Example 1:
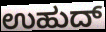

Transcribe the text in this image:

ಉಹುದ್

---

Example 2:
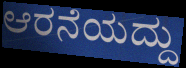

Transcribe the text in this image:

ಆರನೆಯದ್ದು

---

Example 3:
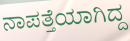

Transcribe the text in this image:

ನಾಪತ್ತೆಯಾಗಿದ್ದ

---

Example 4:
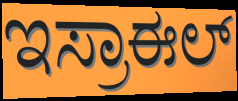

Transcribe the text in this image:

ಇಸ್ರಾಈಲ್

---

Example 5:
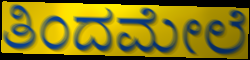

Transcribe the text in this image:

ತಿಂದಮೇಲೆ